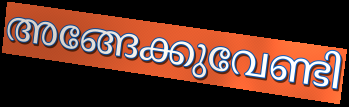
അങ്ങേക്കുവേണ്ടി